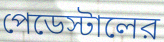
পেডেস্টালের